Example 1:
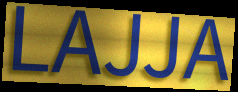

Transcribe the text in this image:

LAJJA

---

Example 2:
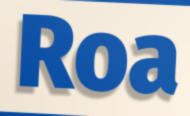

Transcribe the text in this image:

Roa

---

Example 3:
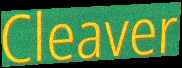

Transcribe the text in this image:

Cleaver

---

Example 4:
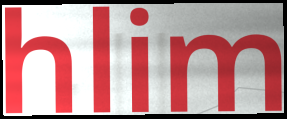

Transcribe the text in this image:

hlim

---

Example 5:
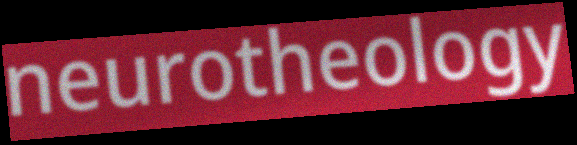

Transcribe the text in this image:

neurotheology